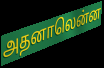
அதனாலென்ன